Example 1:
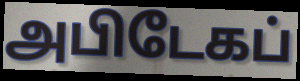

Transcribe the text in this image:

அபிடேகப்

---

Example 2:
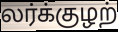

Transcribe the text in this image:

லர்க்குழற்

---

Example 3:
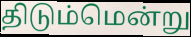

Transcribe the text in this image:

திடும்மென்று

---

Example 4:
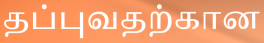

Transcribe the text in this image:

தப்புவதற்கான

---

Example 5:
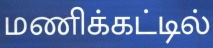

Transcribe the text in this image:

மணிக்கட்டில்